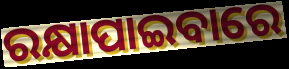
ରକ୍ଷାପାଇବାରେ